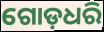
ଗୋଡ଼ଧରି